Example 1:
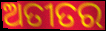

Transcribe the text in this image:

ଅତୀତର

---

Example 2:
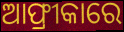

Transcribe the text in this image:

ଆଫ୍ରୀକାରେ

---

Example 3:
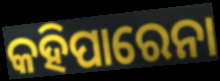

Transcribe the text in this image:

କହିପାରେନା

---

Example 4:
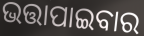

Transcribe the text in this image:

ଭତ୍ତାପାଇବାର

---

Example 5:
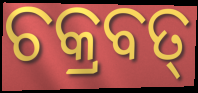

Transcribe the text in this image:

ଚକ୍ରବତ୍